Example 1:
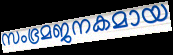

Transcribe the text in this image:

സംഭ്രമജനകമായ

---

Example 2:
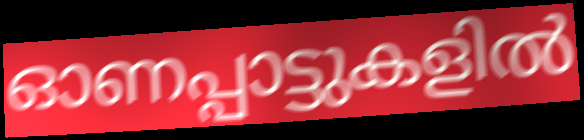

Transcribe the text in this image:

ഓണപ്പാട്ടുകളിൽ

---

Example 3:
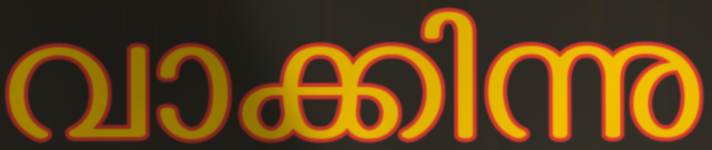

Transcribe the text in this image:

വാക്കിന്നു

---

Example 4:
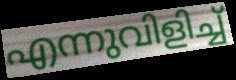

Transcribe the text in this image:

എന്നുവിളിച്ച്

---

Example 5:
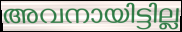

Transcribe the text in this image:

അവനായിട്ടില്ല